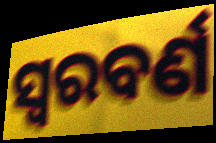
ସ୍ଵରବର୍ଣ